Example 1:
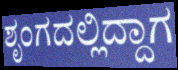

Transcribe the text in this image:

ಶೃಂಗದಲ್ಲಿದ್ದಾಗ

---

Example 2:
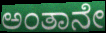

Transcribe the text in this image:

ಅಂತಾನೇ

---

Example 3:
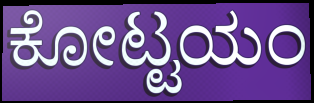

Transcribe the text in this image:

ಕೋಟ್ಟಯಂ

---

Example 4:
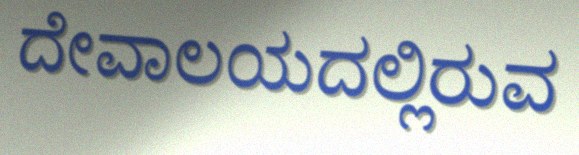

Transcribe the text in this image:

ದೇವಾಲಯದಲ್ಲಿರುವ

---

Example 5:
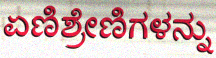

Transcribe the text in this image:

ಏಣಿಶ್ರೇಣಿಗಳನ್ನು